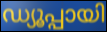
ഡ്യൂപ്പായി